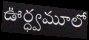
ఊర్ధ్వమూలో